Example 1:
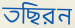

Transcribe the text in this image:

তছিরন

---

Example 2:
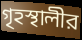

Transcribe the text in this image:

গৃহস্থালীর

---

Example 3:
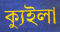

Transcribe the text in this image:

ক্যুইলা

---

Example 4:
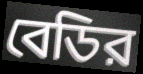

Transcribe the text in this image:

বেডির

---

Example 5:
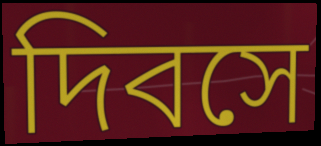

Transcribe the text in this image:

দিবসে